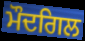
ਮੌਦਗਿਲ